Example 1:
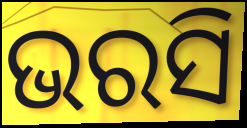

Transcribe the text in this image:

ଭରସି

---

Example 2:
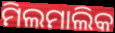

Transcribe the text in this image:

ମିଲମାଲିକ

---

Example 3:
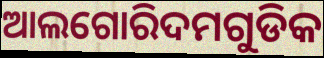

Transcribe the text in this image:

ଆଲଗୋରିଦମଗୁଡିକ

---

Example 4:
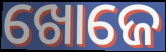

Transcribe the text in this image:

ଖୋଜେ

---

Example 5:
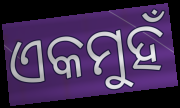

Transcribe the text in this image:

ଏକମୁହଁ